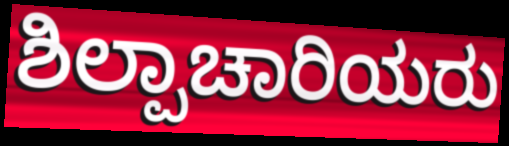
ಶಿಲ್ಪಾಚಾರಿಯರು